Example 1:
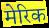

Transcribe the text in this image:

मेरिक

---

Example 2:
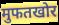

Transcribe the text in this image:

मुफतखोर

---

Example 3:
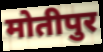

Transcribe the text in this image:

मोतीपुर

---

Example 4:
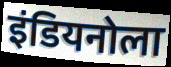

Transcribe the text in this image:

इंडियनोला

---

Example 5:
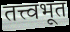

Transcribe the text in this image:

तत्त्वभूत